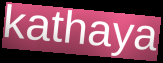
kathaya